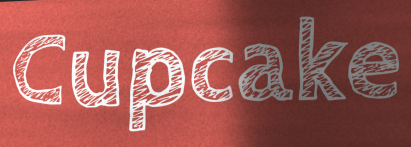
Cupcake